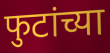
फुटांच्‍या